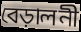
বেড়ালনী